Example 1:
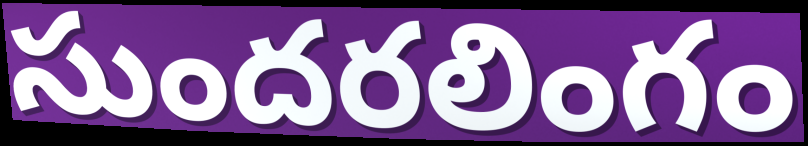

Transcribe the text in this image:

సుందరలింగం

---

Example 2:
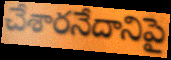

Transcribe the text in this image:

చేశారనేదానిపై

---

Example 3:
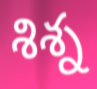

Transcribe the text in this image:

శిశ్న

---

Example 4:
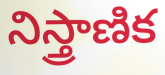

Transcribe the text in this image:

నిస్త్రాణిక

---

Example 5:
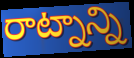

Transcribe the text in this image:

రాట్నాన్ని